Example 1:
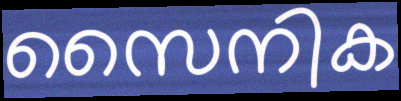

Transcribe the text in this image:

സൈനിക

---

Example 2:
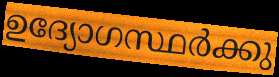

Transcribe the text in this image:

ഉദ്യോഗസ്ഥർക്കു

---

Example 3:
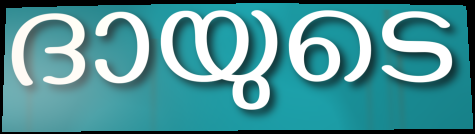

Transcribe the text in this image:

ദായുടെ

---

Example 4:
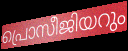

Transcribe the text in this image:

പ്രൊസീജിയറും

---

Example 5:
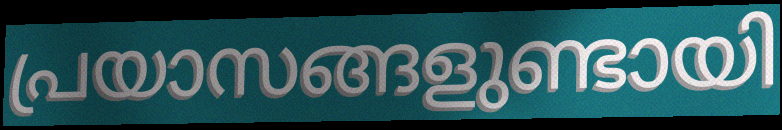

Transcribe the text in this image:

പ്രയാസങ്ങളുണ്ടായി